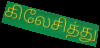
கிலேசித்து